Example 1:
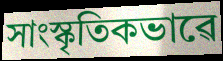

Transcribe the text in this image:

সাংস্কৃতিকভাৱে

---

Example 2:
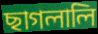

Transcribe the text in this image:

ছাগলালি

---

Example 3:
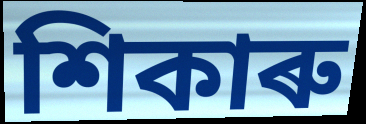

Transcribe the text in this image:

শিকাৰু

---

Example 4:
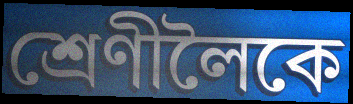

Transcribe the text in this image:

শ্ৰেণীলৈকে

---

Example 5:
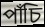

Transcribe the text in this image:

পাঁচি